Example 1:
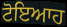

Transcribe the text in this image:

ਟੋਇਆਹ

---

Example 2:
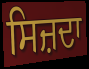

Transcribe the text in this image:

ਸਿਜ਼ਦਾ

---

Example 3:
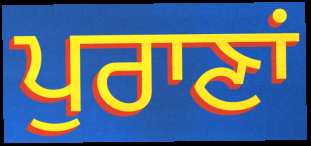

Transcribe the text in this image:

ਪੁਰਾਣਾਂ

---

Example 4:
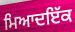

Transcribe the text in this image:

ਮਿਆਦਇੱਕ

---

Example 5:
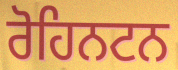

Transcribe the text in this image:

ਰੋਹਿਨਟਨ